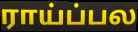
ராய்ப்பல